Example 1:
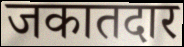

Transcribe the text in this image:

जकातदार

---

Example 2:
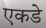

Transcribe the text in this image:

एकडे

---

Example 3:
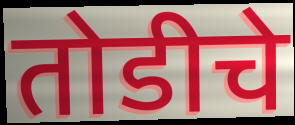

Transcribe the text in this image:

तोडीचे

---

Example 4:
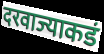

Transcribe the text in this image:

दरवाज्याकडं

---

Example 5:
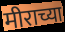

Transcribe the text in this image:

मीराच्या